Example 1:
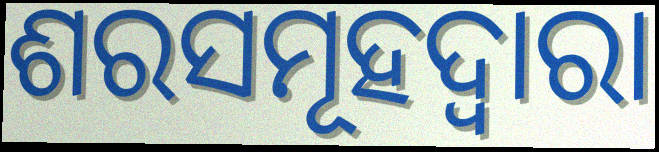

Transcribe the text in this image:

ଶରସମୂହଦ୍ୱାରା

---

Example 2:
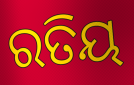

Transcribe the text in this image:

ରତିୟ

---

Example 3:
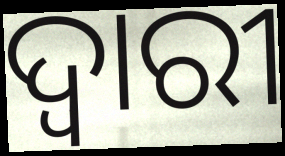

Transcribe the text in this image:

ଦ୍ଵାରୀ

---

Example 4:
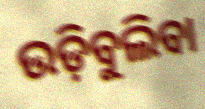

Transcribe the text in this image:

ଉଡ଼ିବୁଲିବା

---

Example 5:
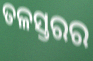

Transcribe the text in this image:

ତଳସ୍ତରର